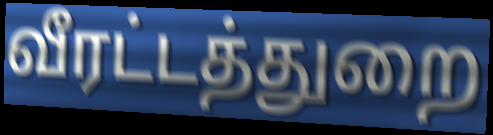
வீரட்டத்துறை